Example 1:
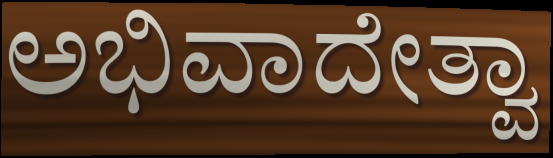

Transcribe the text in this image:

ಅಭಿವಾದೇತ್ವಾ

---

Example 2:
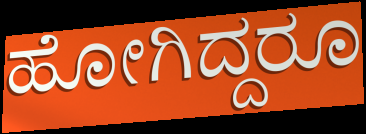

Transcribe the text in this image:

ಹೋಗಿದ್ದರೂ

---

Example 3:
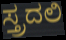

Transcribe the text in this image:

ಸ್ತ್ರದಲಿ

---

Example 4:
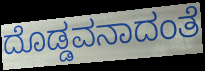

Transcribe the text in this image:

ದೊಡ್ಡವನಾದಂತೆ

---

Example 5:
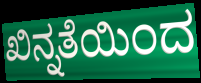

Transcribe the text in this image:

ಖಿನ್ನತೆಯಿಂದ